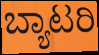
ಬ್ಯಾಟರಿ